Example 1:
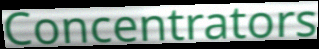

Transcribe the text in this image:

Concentrators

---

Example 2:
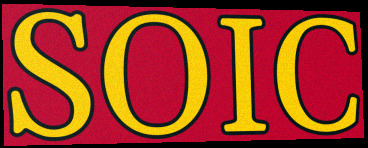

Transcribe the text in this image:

SOIC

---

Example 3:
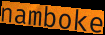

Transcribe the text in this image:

namboke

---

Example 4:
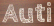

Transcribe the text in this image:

Auti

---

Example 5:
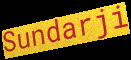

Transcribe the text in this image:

Sundarji